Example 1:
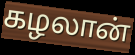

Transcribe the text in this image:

கழலான்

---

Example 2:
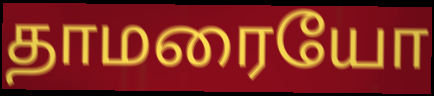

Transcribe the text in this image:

தாமரையோ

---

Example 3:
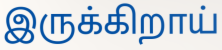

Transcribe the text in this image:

இருக்கிறாய்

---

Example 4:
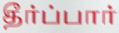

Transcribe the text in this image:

தீர்ப்பார்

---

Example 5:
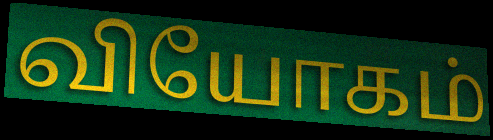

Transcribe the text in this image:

வியோகம்